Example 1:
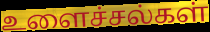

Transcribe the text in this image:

உளைச்சல்கள்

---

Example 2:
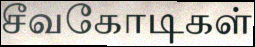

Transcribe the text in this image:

சீவகோடிகள்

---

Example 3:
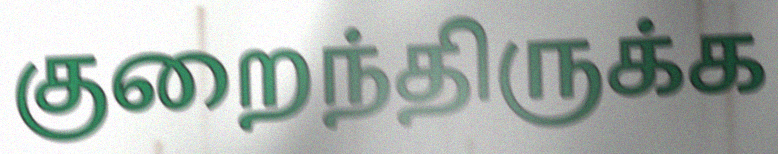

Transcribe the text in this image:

குறைந்திருக்க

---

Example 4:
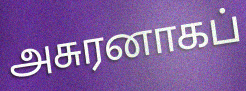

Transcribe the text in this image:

அசுரனாகப்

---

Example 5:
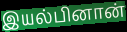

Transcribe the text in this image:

இயல்பினான்